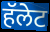
हॅलेट